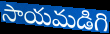
సాయమడిగి